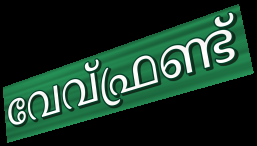
വേവ്ഫ്രണ്ട്